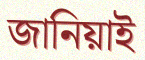
জানিয়াই